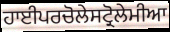
ਹਾਈਪਰਚੋਲੇਸਟ੍ਰੋਲੇਮੀਆ